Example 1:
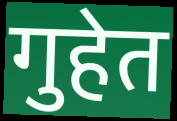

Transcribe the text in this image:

गुहेत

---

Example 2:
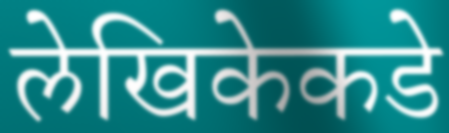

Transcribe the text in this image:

लेखिकेकडे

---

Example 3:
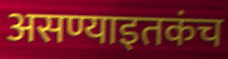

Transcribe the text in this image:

असण्याइतकंच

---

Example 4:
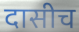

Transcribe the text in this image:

दासीच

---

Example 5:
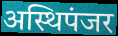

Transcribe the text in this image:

अस्थिपंजर